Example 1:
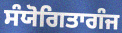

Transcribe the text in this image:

ਸੰਯੋਗਿਤਾਗੰਜ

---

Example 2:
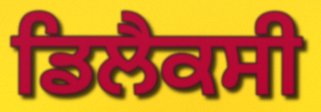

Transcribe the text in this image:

ਡਿਲੈਕਸੀ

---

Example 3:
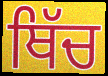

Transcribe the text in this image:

ਥਿੱਚ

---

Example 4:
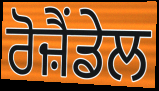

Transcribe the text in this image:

ਰੋਜ਼ੈਂਡੇਲ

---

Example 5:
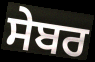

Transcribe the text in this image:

ਸੇਬਰ